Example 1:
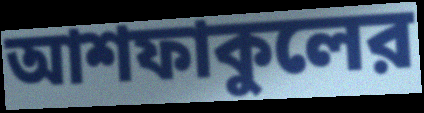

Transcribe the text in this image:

আশফাকুলের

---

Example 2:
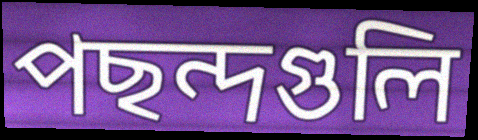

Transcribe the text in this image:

পছন্দগুলি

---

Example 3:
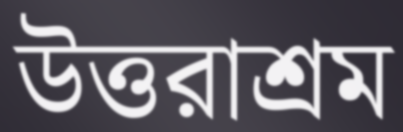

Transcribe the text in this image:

উত্তরাশ্রম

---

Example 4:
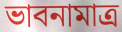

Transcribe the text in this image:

ভাবনামাত্র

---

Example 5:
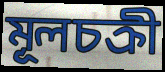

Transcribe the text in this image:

মূলচক্রী